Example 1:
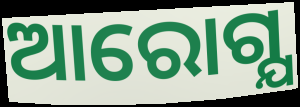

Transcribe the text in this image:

ଆରୋଗ୍ଯ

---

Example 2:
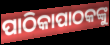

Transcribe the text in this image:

ପାଠିକାପାଠକଙ୍କୁ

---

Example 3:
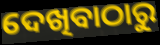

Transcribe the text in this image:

ଦେଖିବାଠାରୁ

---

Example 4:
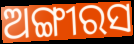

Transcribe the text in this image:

ଅଙ୍ଗୀରସ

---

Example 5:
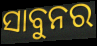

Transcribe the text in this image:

ସାବୁନର